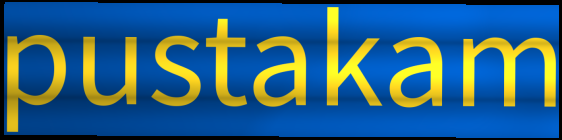
pustakam